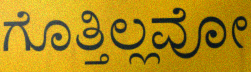
ಗೊತ್ತಿಲ್ಲವೋ